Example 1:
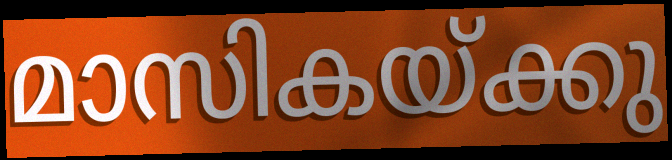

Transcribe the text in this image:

മാസികയ്ക്കു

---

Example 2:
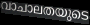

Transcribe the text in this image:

വാചാലതയുടെ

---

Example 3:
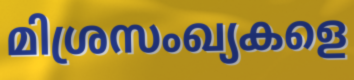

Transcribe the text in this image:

മിശ്രസംഖ്യകളെ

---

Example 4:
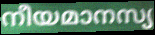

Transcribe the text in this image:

നീയമാനസ്യ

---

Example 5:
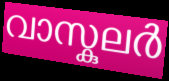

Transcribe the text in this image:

വാസ്കുലർ